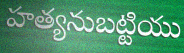
హత్యనుబట్టియు